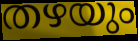
തഴയും